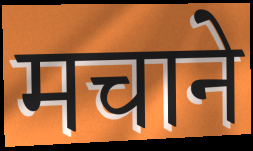
मचाने